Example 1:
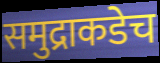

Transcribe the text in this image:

समुद्राकडेच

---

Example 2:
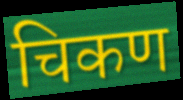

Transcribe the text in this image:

चिकण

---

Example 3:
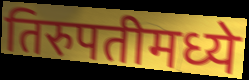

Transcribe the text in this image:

तिरुपतीमध्ये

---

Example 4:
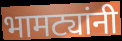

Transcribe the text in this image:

भामट्यांनी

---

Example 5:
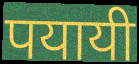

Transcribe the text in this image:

पयायी